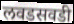
लवडसवडी